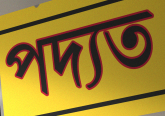
পদ্যত